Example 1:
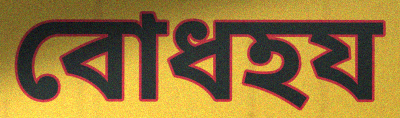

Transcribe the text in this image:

বোধহয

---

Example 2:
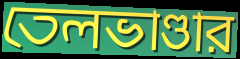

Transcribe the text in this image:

তেলভাণ্ডার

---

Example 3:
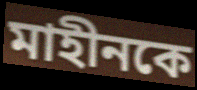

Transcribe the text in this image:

মাহীনকে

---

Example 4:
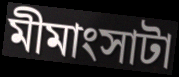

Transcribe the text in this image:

মীমাংসাটা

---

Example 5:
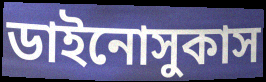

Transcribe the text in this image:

ডাইনোসুকাস